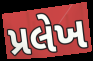
પ્રલેખ